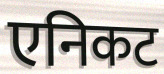
एनिकट